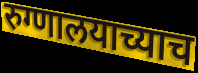
रुग्णालयाच्याच